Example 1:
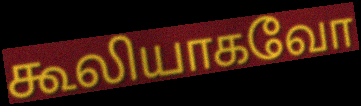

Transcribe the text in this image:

கூலியாகவோ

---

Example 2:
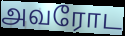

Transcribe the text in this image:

அவரோட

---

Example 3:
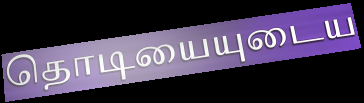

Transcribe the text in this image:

தொடியையுடைய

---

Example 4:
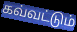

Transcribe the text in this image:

கவ்வட்டும்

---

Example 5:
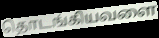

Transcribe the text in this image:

தொடங்கியவளை